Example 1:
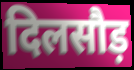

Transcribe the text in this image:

दिलसौड़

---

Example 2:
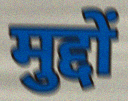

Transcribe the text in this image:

मुद्दों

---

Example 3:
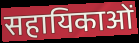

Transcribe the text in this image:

सहायिकाओं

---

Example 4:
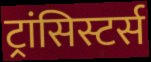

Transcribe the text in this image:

ट्रांसिस्टर्स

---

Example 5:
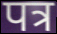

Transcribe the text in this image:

पत्र